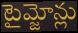
టైమ్జోన్లు